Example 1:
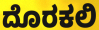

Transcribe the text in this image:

ದೊರಕಲಿ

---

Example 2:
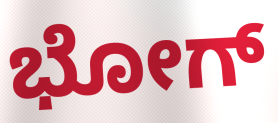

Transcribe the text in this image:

ಭೋಗ್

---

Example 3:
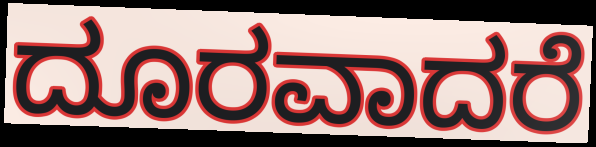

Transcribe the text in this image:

ದೂರವಾದರೆ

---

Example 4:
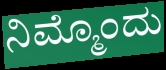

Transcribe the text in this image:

ನಿಮ್ಮೊಂದು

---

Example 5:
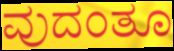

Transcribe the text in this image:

ವುದಂತೂ